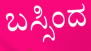
ಬಸ್ಸಿಂದ